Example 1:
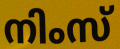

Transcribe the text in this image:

നിംസ്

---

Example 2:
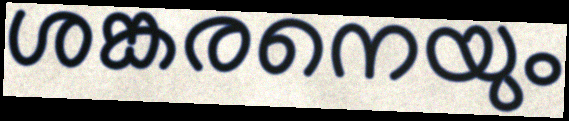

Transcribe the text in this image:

ശങ്കരനെയും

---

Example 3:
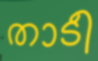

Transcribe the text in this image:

താടീ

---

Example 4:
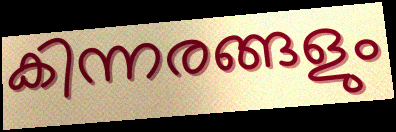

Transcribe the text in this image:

കിന്നരങ്ങളും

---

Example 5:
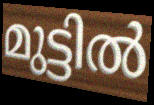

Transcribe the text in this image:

മുട്ടിൽ